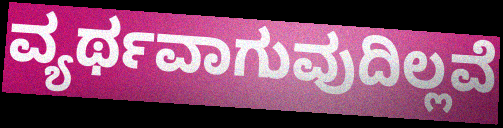
ವ್ಯರ್ಥವಾಗುವುದಿಲ್ಲವೆ